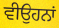
ਵੀਉਹਨਾਂ